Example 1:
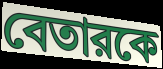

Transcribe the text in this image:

বেতারকে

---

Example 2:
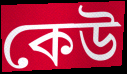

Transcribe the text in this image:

কেউ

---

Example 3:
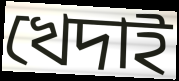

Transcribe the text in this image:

খেদাই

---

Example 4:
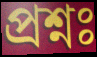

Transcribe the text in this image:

প্রশ্নঃ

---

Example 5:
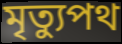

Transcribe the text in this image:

মৃত্যুপথ